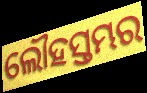
ଲୌହସ୍ତମ୍ଭର